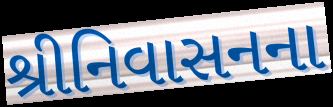
શ્રીનિવાસનના